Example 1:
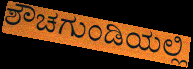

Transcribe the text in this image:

ಶೌಚಗುಂಡಿಯಲ್ಲಿ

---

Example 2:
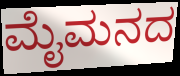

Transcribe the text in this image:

ಮೈಮನದ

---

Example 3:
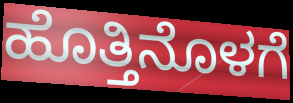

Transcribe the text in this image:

ಹೊತ್ತಿನೊಳಗೆ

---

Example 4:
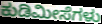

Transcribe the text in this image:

ಕುಡಿಮೀಸೆಗಳು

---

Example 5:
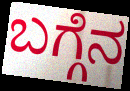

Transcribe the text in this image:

ಬಗ್ಗೆನ